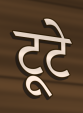
टूटे